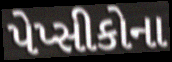
પેપ્સીકોના